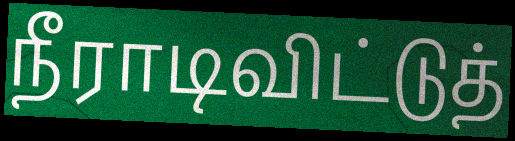
நீராடிவிட்டுத்